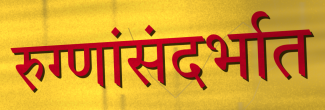
रुग्णांसंदर्भात